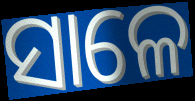
ସାଳେ